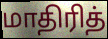
மாதிரித்